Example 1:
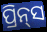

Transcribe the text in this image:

ପ୍ରିନ୍‍ସ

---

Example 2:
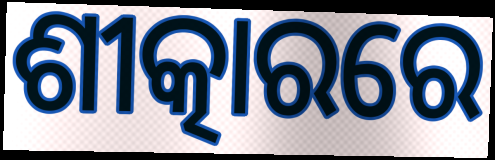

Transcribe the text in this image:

ଶୀତ୍କାରରେ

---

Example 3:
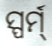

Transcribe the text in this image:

ସ୍ପର୍ମ୍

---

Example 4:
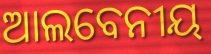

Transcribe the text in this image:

ଆଲବେନୀୟ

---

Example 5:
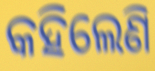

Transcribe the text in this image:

କହିଲେଣି